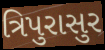
ત્રિપુરાસુર